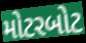
મોટરબોટ